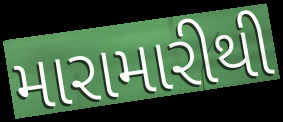
મારામારીથી